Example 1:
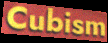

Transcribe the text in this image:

Cubism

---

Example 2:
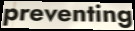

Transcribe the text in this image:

preventing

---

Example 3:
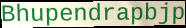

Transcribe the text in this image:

Bhupendrapbjp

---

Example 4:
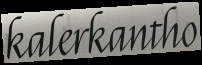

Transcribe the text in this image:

kalerkantho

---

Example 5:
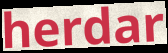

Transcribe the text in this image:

herdar